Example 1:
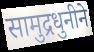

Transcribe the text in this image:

सामुद्रधुनीने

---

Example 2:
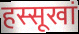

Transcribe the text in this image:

हस्सूखां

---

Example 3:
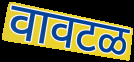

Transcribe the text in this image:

वावटळ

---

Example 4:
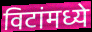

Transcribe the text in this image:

विटांमध्ये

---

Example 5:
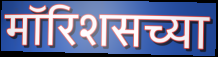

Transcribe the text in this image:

मॉरिशसच्या